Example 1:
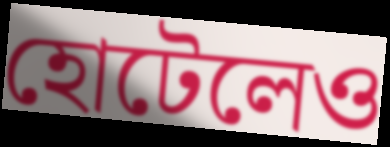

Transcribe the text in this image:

হোটেলেও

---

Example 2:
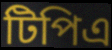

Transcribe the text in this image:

টিপিএ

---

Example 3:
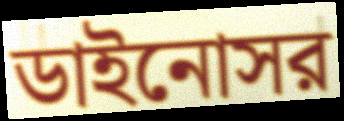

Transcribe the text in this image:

ডাইনোসর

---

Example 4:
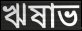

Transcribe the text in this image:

ঋষাভ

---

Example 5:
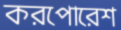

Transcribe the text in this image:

করপোরেশ